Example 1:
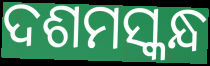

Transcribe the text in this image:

ଦଶମସ୍କନ୍ଧ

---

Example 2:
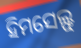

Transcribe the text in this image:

ହିମସେଲ୍ଫ୍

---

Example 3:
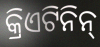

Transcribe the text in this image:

କ୍ରିଏଟିନିନ୍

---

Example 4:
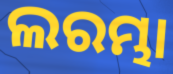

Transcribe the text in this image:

ଲରମ୍ଭା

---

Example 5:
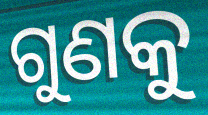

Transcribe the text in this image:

ଗୁଣକୁ